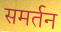
समर्तन